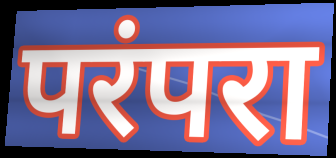
परंपरा